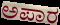
ಅಪಾರ